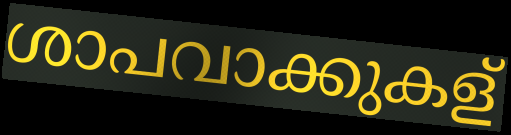
ശാപവാക്കുകള്